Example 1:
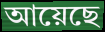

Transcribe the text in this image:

আয়েছে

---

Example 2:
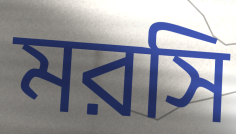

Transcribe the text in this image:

মরসি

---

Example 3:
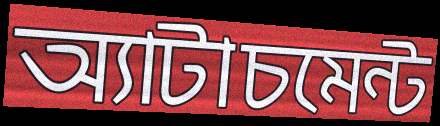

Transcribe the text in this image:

অ্যাটাচমেন্ট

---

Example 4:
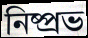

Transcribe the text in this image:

নিষ্প্রভ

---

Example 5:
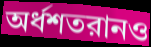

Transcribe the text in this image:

অর্ধশতরানও